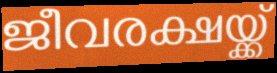
ജീവരക്ഷയ്ക്ക്